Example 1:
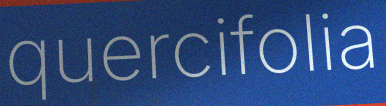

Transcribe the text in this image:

quercifolia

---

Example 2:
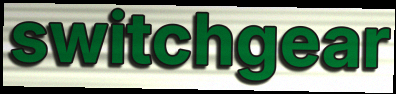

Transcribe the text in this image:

switchgear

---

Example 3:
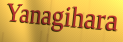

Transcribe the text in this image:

Yanagihara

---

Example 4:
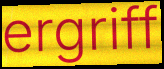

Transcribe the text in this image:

ergriff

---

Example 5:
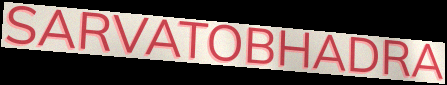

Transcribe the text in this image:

SARVATOBHADRA